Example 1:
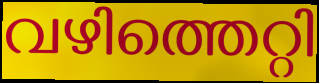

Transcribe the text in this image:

വഴിത്തെറ്റി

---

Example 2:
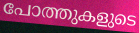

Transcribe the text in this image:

പോത്തുകളുടെ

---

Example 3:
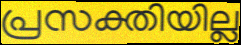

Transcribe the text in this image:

പ്രസക്തിയില്ല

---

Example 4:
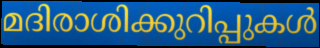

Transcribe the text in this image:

മദിരാശിക്കുറിപ്പുകൾ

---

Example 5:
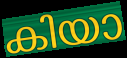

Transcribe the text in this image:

കിയാ